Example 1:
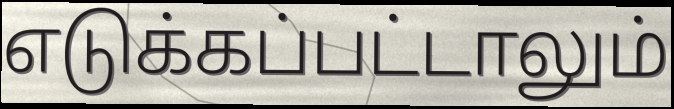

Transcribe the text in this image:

எடுக்கப்பட்டாலும்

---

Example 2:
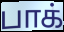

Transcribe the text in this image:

பாக்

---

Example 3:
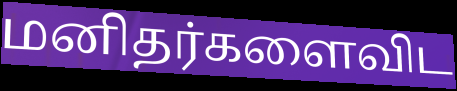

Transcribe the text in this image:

மனிதர்களைவிட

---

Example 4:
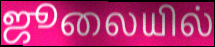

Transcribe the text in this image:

ஜூலையில்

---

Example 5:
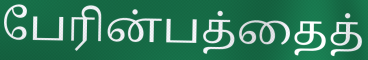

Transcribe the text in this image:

பேரின்பத்தைத்